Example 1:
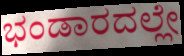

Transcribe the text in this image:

ಭಂಡಾರದಲ್ಲೇ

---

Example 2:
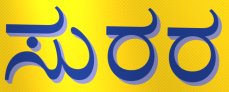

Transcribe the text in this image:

ಸುರರ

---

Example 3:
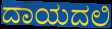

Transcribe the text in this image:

ದಾಯದಲಿ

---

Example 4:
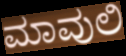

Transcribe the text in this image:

ಮಾವುಲಿ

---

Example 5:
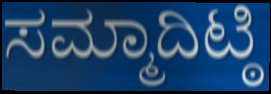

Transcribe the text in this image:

ಸಮ್ಮಾದಿಟ್ಠಿ